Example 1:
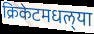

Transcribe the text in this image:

क्रिकेटमधल्या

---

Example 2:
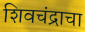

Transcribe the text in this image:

शिवचंद्राचा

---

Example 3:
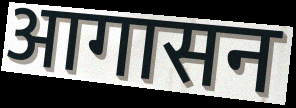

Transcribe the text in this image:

आगासन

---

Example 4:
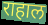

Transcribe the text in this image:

राहाल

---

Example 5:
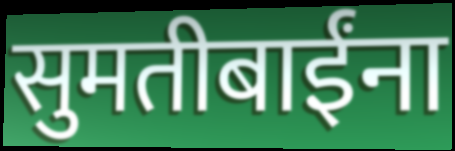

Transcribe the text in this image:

सुमतीबाईंना